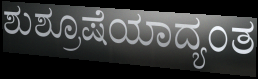
ಶುಶ್ರೂಷೆಯಾದ್ಯಂತ